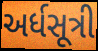
અર્ધસૂત્રી